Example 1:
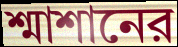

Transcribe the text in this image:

শ্মাশানের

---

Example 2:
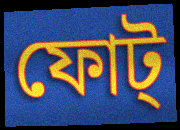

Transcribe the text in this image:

ফোট্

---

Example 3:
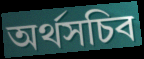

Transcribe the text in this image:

অর্থসচিব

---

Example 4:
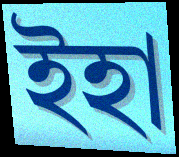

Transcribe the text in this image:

ইহা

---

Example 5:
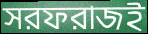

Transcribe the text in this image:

সরফরাজই